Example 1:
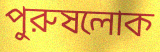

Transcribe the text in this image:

পুরুষলোক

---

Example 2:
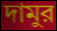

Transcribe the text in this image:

দামুর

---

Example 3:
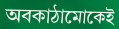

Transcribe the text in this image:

অবকাঠামোকেই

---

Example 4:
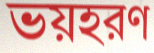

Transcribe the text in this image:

ভয়হরণ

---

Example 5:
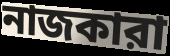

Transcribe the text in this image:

নাজকারা